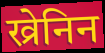
ख्रेनिन